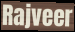
Rajveer